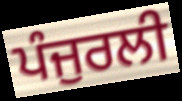
ਪੰਜੁਰਲੀ